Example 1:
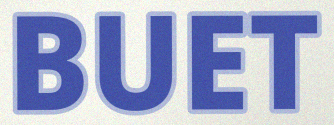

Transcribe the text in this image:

BUET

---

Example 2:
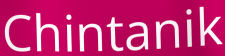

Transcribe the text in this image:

Chintanik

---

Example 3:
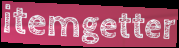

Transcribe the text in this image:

itemgetter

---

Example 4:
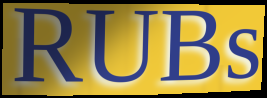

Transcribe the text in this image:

RUBs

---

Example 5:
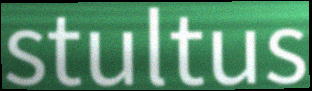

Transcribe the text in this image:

stultus